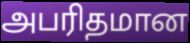
அபரிதமான